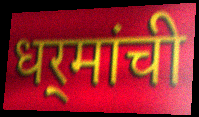
धर्मांची